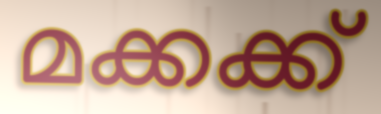
മക്കക്ക്